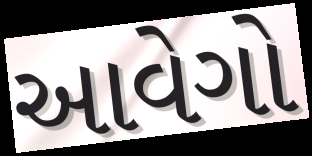
આવેગો